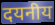
दयनीय